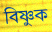
বিষ্ণুক